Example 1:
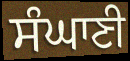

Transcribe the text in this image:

ਸੰਘਾਣੀ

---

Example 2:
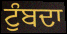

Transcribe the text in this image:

ਟੁੰਬਦਾ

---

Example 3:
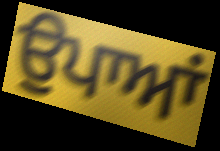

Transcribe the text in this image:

ਉਪਾਆਂ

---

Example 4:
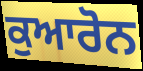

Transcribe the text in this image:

ਕੁਆਰੋਨ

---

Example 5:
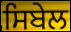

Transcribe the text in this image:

ਸਿਬੇਲ